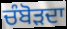
ਚੰਬੋੜਦਾ